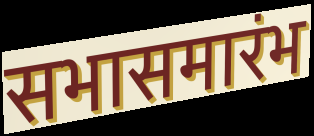
सभासमारंभ